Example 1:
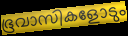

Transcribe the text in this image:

ഭൂവാസികളോടും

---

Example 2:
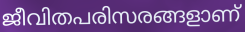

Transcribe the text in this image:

ജീവിതപരിസരങ്ങളാണ്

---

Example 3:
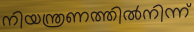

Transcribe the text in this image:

നിയന്ത്രണത്തിൽനിന്ന്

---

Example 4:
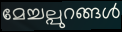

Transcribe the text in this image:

മേച്ചല്പുറങ്ങൾ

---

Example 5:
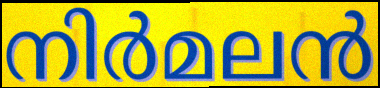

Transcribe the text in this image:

നിർമലൻ